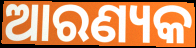
ଆରଣ୍ୟକ